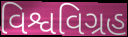
વિશ્વવિગ્રહ